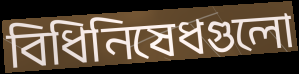
বিধিনিষেধগুলো